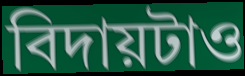
বিদায়টাও